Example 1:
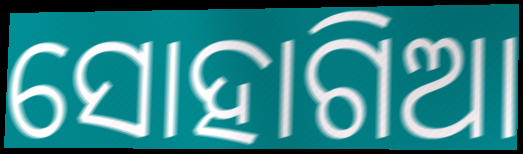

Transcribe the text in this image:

ସୋହାଗିଆ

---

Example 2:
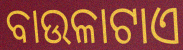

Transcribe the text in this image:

ବାଉଳାଟାଏ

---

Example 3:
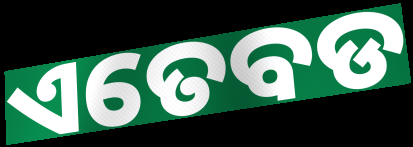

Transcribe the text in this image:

ଏତେବଡ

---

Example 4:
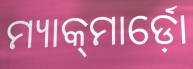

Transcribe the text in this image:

ମ୍ୟାକ୍‍ମାର୍ଡ଼ୋ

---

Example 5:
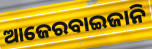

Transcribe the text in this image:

ଆଜେରବାଇଜାନି